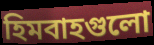
হিমবাহগুলো